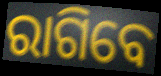
ରାଗିବେ